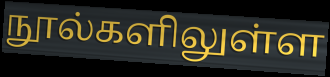
நூல்களிலுள்ள